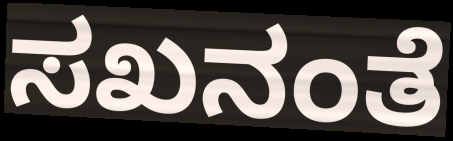
ಸಖನಂತೆ